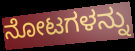
ನೋಟಗಳನ್ನು